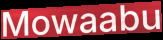
Mowaabu